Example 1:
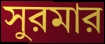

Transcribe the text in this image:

সুরমার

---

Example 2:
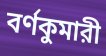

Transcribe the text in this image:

বর্ণকুমারী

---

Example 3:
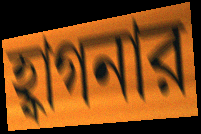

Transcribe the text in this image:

হ্বাগনার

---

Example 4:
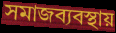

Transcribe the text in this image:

সমাজব্যবস্থায়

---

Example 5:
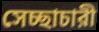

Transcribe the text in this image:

সেচ্ছাচারী